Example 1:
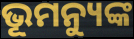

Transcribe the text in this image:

ଭୂମନ୍ୟୁଙ୍କ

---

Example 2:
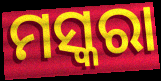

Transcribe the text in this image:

ମସ୍କରା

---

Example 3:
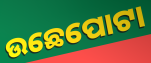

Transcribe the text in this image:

ଉଛେପୋଟା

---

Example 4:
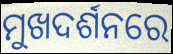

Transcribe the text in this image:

ମୁଖଦର୍ଶନରେ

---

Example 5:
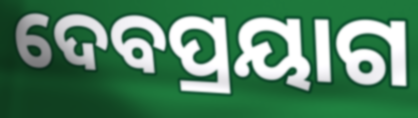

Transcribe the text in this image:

ଦେବପ୍ରୟାଗ